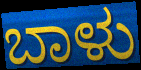
ಬಾಳು